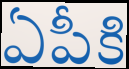
ఏపీకి